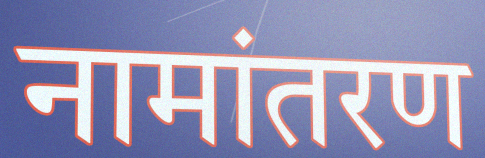
नामांतरण